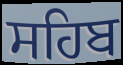
ਸਹਿਬ